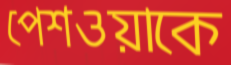
পেশওয়াকে